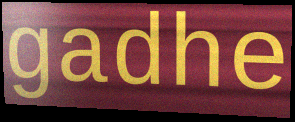
gadhe